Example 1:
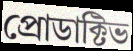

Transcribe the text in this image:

প্রোডাক্টিভ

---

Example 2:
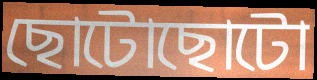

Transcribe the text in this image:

ছোটোছোটো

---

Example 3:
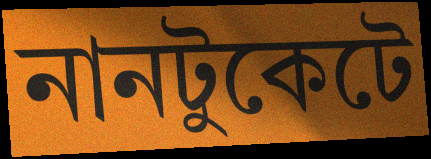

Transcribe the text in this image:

নানটুকেটে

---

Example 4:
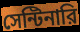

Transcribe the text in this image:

সেন্টিনারি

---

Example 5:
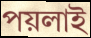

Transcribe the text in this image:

পয়লাই